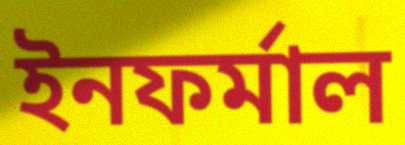
ইনফর্মাল